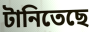
টানিতেছে